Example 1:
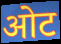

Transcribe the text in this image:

ओट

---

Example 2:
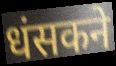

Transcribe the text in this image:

धंसकने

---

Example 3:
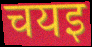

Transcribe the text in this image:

चयइ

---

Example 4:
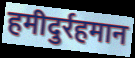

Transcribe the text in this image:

हमीदुर्रहमान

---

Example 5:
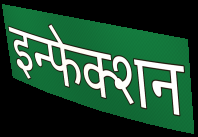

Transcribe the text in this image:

इन्फेक्शन